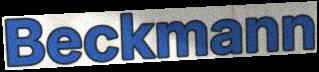
Beckmann